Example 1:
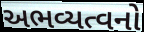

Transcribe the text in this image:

અભવ્યત્વનો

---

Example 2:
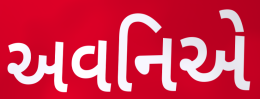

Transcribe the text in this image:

અવનિએ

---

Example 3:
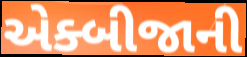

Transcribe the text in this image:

એક્બીજાની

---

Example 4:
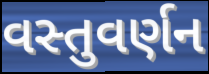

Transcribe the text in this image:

વસ્તુવર્ણન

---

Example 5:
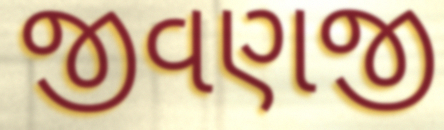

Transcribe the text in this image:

જીવણજી